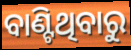
ବାଣ୍ଟିଥିବାରୁ